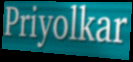
Priyolkar